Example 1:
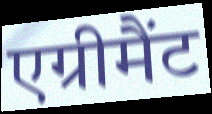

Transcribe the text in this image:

एग्रीमैंट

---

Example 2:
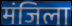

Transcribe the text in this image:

मंजिला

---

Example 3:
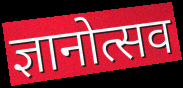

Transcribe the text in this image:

ज्ञानोत्सव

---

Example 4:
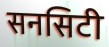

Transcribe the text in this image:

सनसिटी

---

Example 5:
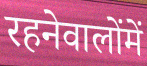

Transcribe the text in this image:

रहनेवालोंमें